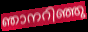
ഞാനറിഞ്ഞു